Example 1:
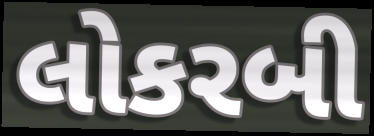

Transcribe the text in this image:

લોકરબી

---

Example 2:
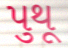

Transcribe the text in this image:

પુથૂ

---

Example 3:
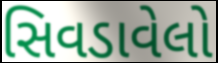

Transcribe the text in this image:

સિવડાવેલો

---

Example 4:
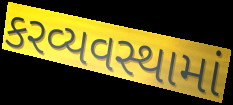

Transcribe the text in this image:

કરવ્યવસ્થામાં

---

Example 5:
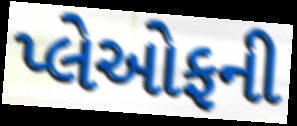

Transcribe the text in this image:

પ્લેઓફની